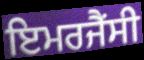
ਇਮਰਜੈਂਸੀ